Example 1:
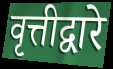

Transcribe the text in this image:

वृत्तीद्वारे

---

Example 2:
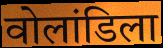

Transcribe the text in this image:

वोलांडिला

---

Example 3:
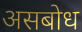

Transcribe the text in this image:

असबोध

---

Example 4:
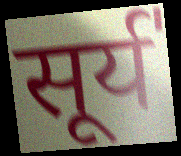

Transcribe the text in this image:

सूर्य॑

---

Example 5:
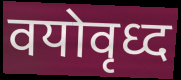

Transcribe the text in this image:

वयोवृध्द